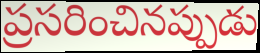
ప్రసరించినప్పుడు